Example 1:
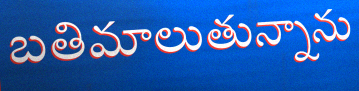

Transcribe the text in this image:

బతిమాలుతున్నాను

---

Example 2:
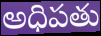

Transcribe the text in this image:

అధిపతు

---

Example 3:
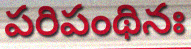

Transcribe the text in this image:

పరిపంథినః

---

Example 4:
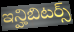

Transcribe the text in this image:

ఇన్హిబిటర్స్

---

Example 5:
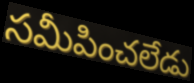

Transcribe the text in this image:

సమీపించలేడు